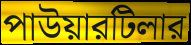
পাউয়ারটিলার